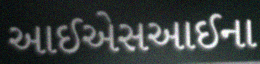
આઈએસઆઈના